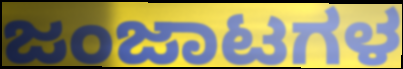
ಜಂಜಾಟಗಳ